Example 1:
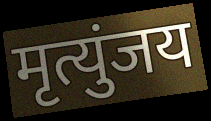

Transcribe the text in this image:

मृत्युंजय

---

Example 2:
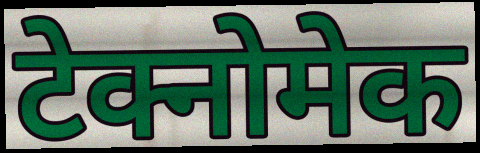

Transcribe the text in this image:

टेक्नोमेक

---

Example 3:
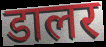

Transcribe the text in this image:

डालर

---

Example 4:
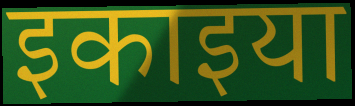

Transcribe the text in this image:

इकाइया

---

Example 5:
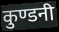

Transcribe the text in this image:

कुण्डनी